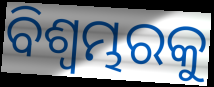
ବିଶ୍ୱମ୍ଭରକୁ